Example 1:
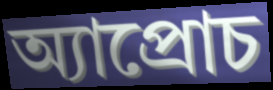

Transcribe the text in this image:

অ্যাপ্রোচ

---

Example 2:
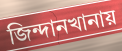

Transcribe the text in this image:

জিন্দানখানায়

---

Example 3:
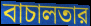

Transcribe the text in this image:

বাচালতার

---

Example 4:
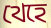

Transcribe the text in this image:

থেহে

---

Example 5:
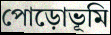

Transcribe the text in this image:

পোড়োভূমি